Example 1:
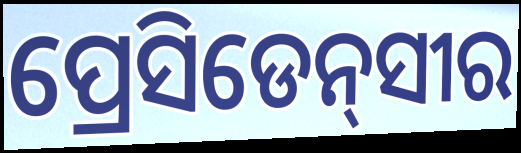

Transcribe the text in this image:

ପ୍ରେସିଡେନ୍‌ସୀର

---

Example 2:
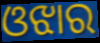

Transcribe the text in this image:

ଓଝାର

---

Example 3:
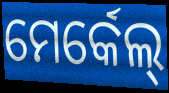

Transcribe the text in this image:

ମେର୍କେଲ୍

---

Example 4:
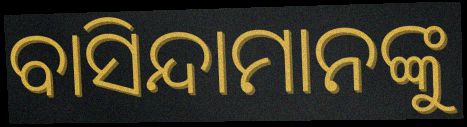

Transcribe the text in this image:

ବାସିନ୍ଦାମାନଙ୍କୁ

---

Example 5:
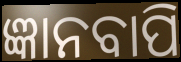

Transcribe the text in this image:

ଜ୍ଞାନବାପି